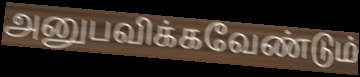
அனுபவிக்கவேண்டும்